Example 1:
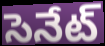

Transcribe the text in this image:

సెనేట్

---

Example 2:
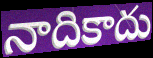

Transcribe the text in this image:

నాదికాదు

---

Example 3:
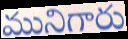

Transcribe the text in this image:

మునిగారు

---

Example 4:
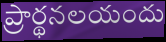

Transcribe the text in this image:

ప్రార్థనలయందు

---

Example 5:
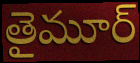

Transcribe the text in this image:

తైమూర్